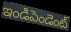
ఇండిపెండెంట్